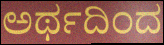
ಅರ್ಥದಿಂದ